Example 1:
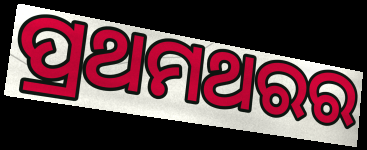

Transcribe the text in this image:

ପ୍ରଥମଥରର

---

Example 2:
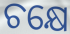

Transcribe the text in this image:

ଚକ୍ଷେ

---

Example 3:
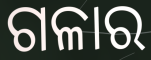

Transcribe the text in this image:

ଗଳାର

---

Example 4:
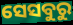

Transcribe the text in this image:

ସେସବୁରୁ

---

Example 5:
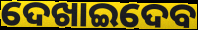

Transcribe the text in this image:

ଦେଖାଇଦେବ